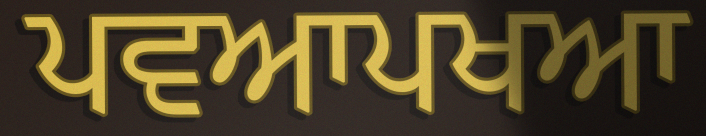
ਪਵਆਪਖਆ